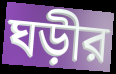
ঘড়ীর